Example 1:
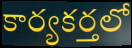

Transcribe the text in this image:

కార్యకర్తలో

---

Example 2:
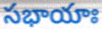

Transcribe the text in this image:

సభాయాః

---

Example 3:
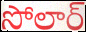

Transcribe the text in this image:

సోలార్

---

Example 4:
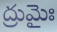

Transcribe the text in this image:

ద్రుమైః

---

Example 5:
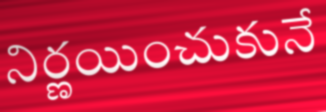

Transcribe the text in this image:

నిర్ణయించుకునే